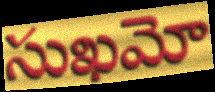
సుఖమో